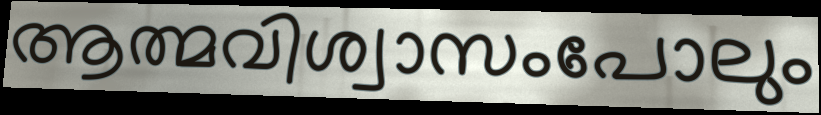
ആത്മവിശ്വാസംപോലും